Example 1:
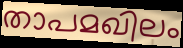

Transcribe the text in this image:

താപമഖിലം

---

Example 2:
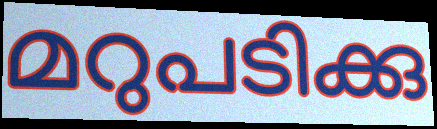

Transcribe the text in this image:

മറുപടിക്കു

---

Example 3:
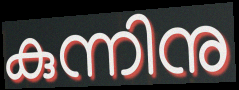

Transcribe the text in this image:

കുന്നിനു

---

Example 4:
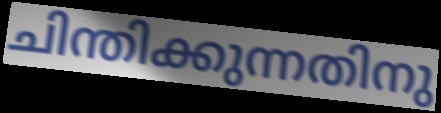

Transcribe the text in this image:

ചിന്തിക്കുന്നതിനു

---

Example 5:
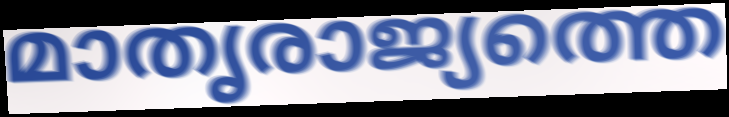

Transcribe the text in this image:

മാതൃരാജ്യത്തെ